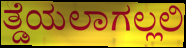
ತ್ಡೆಯಲಾಗಲ್ಲಲಿ